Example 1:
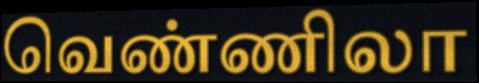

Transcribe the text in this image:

வெண்ணிலா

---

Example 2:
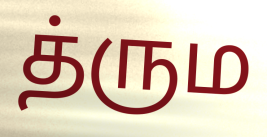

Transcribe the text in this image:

த்ரும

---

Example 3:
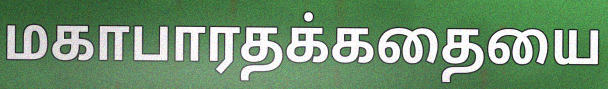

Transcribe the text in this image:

மகாபாரதக்கதையை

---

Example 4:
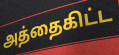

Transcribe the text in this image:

அத்தைகிட்ட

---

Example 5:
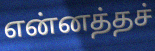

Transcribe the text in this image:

என்னத்தச்